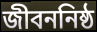
জীবননিষ্ঠ